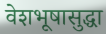
वेशभूषासुद्धा